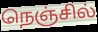
நெஞ்சில்